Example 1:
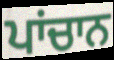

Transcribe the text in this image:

ਪਾਂਚਾਨ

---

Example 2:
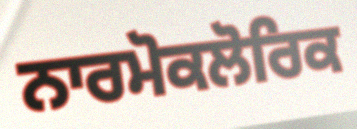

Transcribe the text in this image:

ਨਾਰਮੋਕਲੋਰਿਕ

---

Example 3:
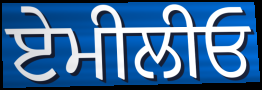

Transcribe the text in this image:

ਏਮੀਲੀਓ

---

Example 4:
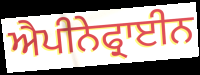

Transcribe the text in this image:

ਐਪੀਨੇਫ੍ਰਾਈਨ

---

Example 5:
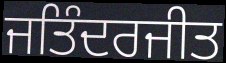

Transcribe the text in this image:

ਜਤਿੰਦਰਜੀਤ